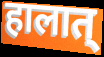
हालात्